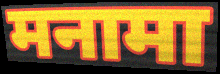
मनामा